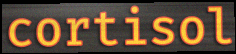
cortisol